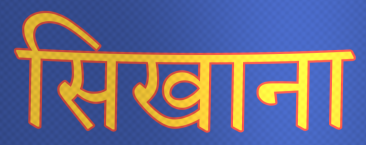
सिखाना